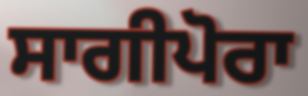
ਸਾਗੀਪੋਰਾ